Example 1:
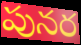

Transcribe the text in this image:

పునర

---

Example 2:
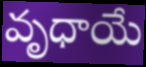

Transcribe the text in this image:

వృధాయే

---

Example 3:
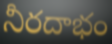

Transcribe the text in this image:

నీరదాభం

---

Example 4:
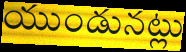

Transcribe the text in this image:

యుండునట్లు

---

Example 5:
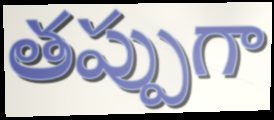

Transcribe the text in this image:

తప్పుగా